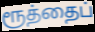
ரூத்தைப்